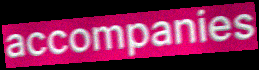
accompanies